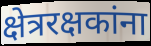
क्षेत्ररक्षकांना